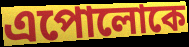
এপোলোকে